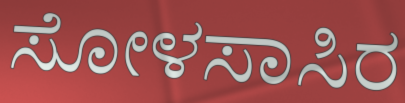
ಸೋಳಸಾಸಿರ